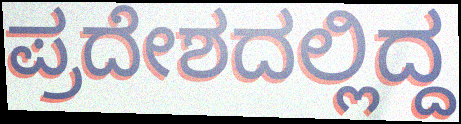
ಪ್ರದೇಶದಲ್ಲಿದ್ದ